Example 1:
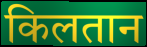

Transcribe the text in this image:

किलतान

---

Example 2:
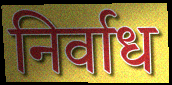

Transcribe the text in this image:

निर्वाध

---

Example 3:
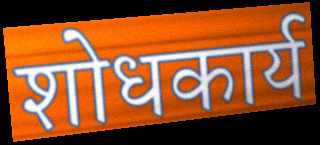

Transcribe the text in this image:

शोधकार्य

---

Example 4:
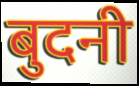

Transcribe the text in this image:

बुदनी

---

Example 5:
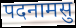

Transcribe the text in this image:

पदनामसु